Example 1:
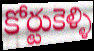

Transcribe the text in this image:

కోర్టుకెళ్ళి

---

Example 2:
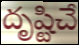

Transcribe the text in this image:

దృష్టిచే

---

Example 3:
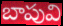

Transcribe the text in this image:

బాపువి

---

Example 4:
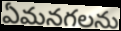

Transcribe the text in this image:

ఏమనగలను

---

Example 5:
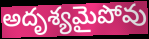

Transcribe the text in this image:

అదృశ్యమైపోవు